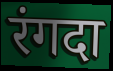
रंगदा